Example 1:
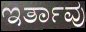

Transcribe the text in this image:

ಇರ್ತಾವು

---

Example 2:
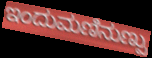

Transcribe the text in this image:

ಇಂದುಮಣಿನುಣ್ಪು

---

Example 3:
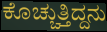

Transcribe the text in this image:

ಕೊಚ್ಚುತ್ತಿದ್ದನು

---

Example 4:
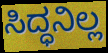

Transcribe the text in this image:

ಸಿದ್ಧನಿಲ್ಲ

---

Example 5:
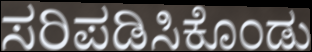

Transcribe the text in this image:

ಸರಿಪಡಿಸಿಕೊಂಡು